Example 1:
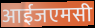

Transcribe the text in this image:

आईजएमसी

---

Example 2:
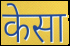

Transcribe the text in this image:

केसा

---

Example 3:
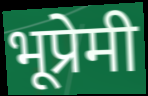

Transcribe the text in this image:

भूप्रेमी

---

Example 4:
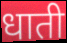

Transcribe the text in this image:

धाती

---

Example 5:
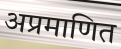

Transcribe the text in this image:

अप्रमाणित